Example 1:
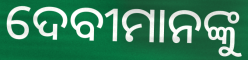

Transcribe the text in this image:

ଦେବୀମାନଙ୍କୁ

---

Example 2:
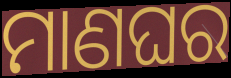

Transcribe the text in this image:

ମାଣଘର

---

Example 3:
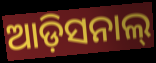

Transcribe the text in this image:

ଆଡ଼ିସନାଲ୍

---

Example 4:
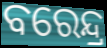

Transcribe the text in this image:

ବରେନ୍ଦ୍ର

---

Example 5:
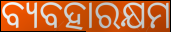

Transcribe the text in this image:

ବ୍ୟବହାରକ୍ଷମ